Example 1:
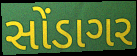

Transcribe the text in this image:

સોંડાગર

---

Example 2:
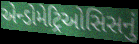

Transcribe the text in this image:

એન્ડોમેટ્રિઓસિસનું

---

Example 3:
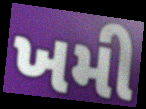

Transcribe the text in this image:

ખમી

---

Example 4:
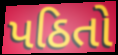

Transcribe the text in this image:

પઠિતો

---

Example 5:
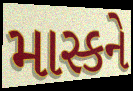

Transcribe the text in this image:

માસ્કને